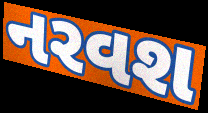
નરવશ